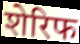
शेरिफ